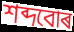
শব্দবোৰ